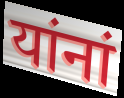
यांनां